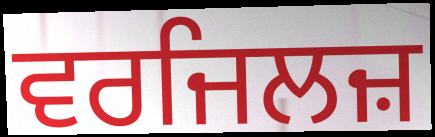
ਵਰਜਿਲਜ਼